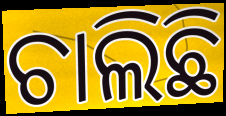
ଚାଲିଛି